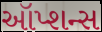
ઑપ્શન્સ